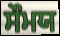
ਸੌਮਯ